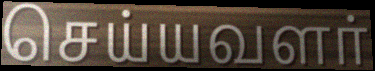
செய்யவளர்